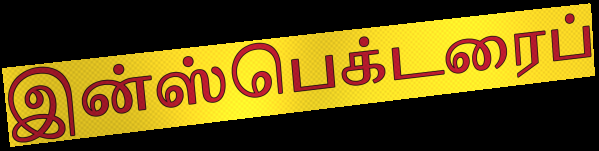
இன்ஸ்பெக்டரைப்